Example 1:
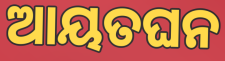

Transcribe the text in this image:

ଆୟତଘନ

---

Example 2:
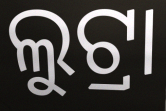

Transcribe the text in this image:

ଲୁଟ୍ରା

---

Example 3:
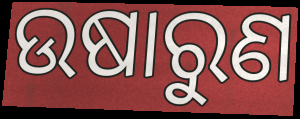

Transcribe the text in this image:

ଉଷାରୁଣ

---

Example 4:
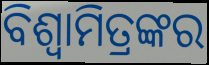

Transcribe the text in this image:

ବିଶ୍ୱାମିତ୍ରଙ୍କର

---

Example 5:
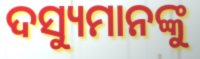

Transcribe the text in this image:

ଦସ୍ୟୁମାନଙ୍କୁ